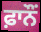
ਫ਼ਾਨੌਂ